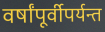
वर्षांपूर्वीपर्यन्त